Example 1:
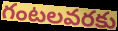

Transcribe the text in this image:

గంటలవరకు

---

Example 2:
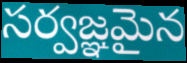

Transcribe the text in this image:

సర్వజ్ఞమైన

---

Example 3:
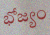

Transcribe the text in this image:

భోజ్యం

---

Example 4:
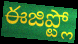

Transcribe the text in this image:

ఈజిప్ట్లో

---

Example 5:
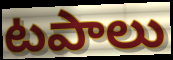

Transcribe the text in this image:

టపాలు